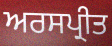
ਅਰਸਪ੍ਰੀਤ